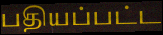
பதியப்பட்ட